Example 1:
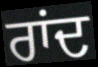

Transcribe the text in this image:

ਰਾਂਦ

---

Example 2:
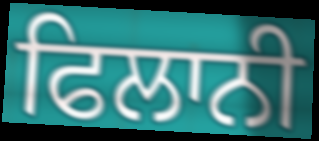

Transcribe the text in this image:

ਫਿਲਾਨੀ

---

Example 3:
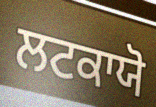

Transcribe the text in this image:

ਲਟਕਾਯੋ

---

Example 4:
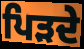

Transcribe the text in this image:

ਪਿੜਦੇ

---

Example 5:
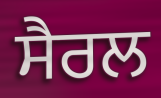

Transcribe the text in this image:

ਸੈਰਲ